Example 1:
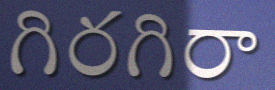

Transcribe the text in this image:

గిరగిరా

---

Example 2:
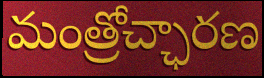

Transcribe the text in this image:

మంత్రోచ్ఛారణ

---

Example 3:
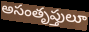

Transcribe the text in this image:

అసంతృప్తులూ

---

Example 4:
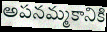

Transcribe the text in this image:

అపనమ్మకానికి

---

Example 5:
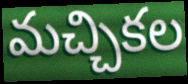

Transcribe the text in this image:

మచ్చికల